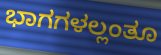
ಭಾಗಗಳಲ್ಲಂತೂ